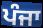
ਪੰਜਾ